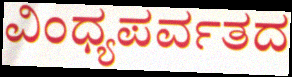
ವಿಂಧ್ಯಪರ್ವತದ